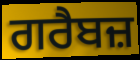
ਗਰੈਬਜ਼